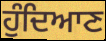
ਹੁੰਦਿਆਣ